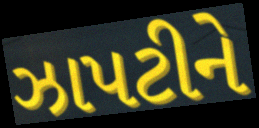
ઝાપટીને